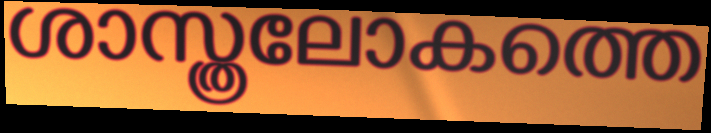
ശാസ്ത്രലോകത്തെ